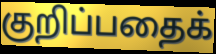
குறிப்பதைக்